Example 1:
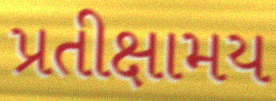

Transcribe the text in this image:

પ્રતીક્ષામય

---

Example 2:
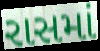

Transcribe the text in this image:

રાસમાં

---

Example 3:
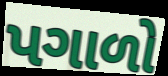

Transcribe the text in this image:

પગાળો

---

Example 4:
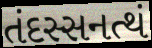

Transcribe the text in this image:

તંદસ્સનત્થં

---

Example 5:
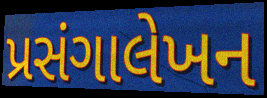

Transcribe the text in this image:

પ્રસંગાલેખન